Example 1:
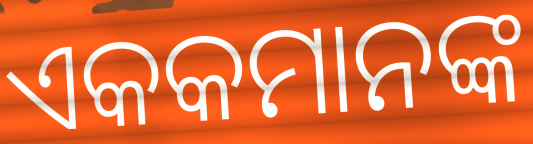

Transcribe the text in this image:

ଏକକମାନଙ୍କ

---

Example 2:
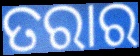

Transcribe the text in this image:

ତରାର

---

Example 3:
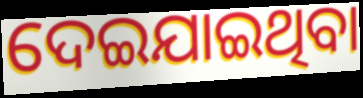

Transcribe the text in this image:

ଦେଇଯାଇଥିବା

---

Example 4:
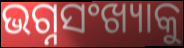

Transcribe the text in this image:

ଭଗ୍ନସଂଖ୍ୟାକୁ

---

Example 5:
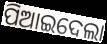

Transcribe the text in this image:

ପିଆଇଦେଲା